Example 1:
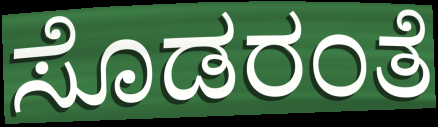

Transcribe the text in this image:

ಸೊಡರಂತೆ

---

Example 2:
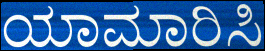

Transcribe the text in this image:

ಯಾಮಾರಿಸಿ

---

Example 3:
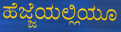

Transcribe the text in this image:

ಹೆಜ್ಜೆಯಲ್ಲಿಯೂ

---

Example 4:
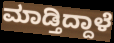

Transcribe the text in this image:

ಮಾಡ್ತಿದ್ದಾಳೆ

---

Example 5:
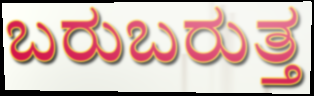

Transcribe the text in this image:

ಬರುಬರುತ್ತ